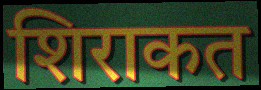
शिराकत